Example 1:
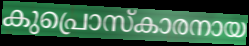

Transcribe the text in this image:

കുപ്രൊസ്കാരനായ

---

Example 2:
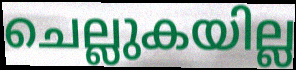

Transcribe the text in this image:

ചെല്ലുകയില്ല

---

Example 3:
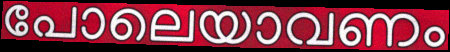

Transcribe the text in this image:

പോലെയാവണം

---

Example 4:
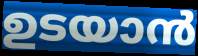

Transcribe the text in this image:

ഉടയാൻ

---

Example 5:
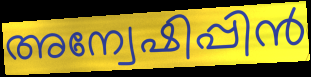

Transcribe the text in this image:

അന്വേഷിപ്പിൻ